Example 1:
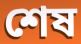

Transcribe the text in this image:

শেষ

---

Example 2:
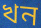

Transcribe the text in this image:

খন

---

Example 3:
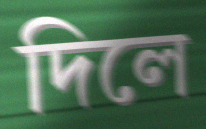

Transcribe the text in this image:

দিলে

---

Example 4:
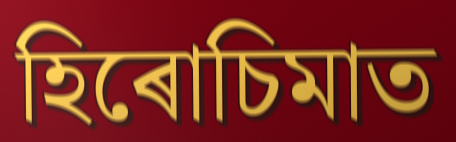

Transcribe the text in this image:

হিৰোচিমাত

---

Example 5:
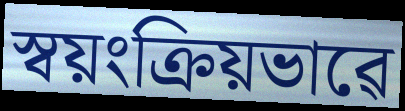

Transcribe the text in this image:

স্বয়ংক্ৰিয়ভাৱে